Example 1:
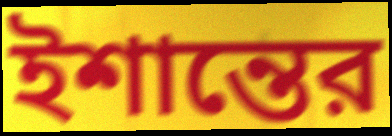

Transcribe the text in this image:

ইশান্তের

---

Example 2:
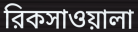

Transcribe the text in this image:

রিকসাওয়ালা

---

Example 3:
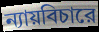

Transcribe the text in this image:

ন্যায়বিচারে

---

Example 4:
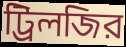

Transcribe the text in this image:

ট্রিলজির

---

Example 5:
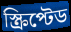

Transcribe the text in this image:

স্ক্রিপ্টেড